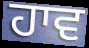
ਹਾਵ